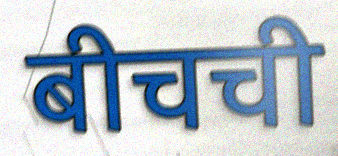
बीचची